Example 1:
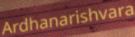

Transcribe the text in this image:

Ardhanarishvara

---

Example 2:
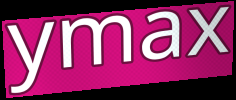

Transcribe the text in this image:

ymax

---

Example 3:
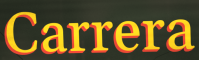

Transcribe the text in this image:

Carrera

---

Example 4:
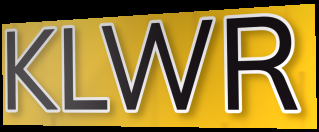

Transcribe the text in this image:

KLWR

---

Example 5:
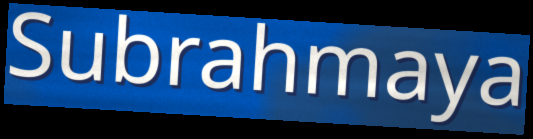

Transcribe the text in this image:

Subrahmaya